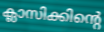
ക്ലാസിക്കിന്റെ